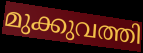
മുക്കുവത്തി